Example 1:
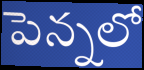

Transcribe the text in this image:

పెన్నలో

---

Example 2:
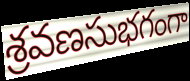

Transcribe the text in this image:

శ్రవణసుభగంగా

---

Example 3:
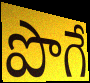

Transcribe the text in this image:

పొగే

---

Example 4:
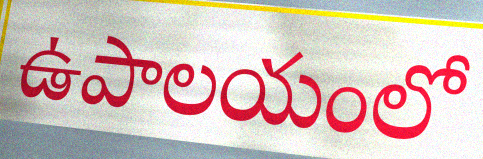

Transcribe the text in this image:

ఉపాలయంలో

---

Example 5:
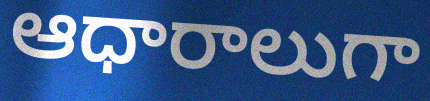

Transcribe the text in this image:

ఆధారాలుగా